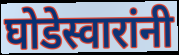
घोडेस्वारांनी